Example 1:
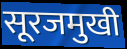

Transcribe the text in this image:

सूरजमुखी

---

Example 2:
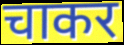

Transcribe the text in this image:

चाकर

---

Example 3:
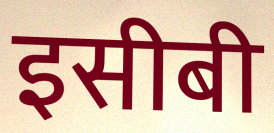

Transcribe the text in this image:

इसीबी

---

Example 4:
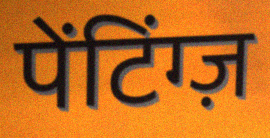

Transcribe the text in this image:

पेंटिंग्ज़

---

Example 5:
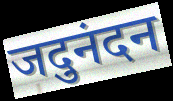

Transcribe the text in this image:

जदुनंदन